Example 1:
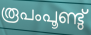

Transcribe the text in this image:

രൂപംപൂണ്ടു്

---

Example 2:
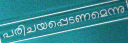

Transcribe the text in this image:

പരിചയപ്പെടണമെന്നു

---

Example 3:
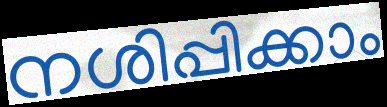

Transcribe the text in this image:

നശിപ്പിക്കാം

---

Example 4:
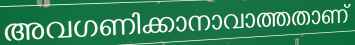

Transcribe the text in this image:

അവഗണിക്കാനാവാത്തതാണ്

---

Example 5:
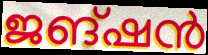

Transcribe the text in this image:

ജങ്ഷൻ